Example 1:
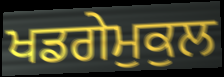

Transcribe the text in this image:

ਖਡਗੇਮੁਕੁਲ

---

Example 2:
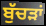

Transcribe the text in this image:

ਬੁੱਚੜਾਂ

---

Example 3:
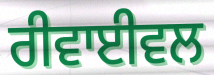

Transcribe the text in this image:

ਰੀਵਾਈਵਲ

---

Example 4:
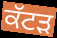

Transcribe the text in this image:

ਕੱਟੜ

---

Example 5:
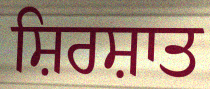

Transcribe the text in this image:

ਸ਼ਿਰਸ਼ਾਤ